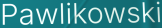
Pawlikowski